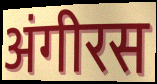
अंगीरस